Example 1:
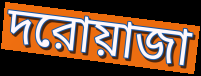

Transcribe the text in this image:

দরোয়াজা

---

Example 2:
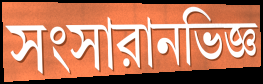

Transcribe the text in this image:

সংসারানভিজ্ঞ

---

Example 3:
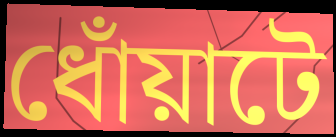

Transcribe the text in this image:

ধোঁয়াটে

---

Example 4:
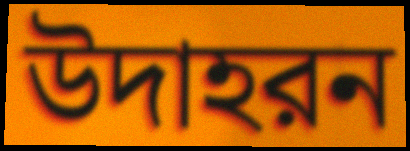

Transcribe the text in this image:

উদাহরন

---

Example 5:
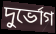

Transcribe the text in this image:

দুর্ভোগ